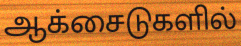
ஆக்சைடுகளில்